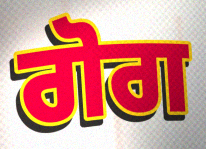
ਗੋਗ